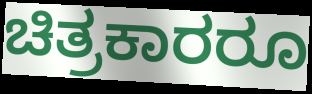
ಚಿತ್ರಕಾರರೂ